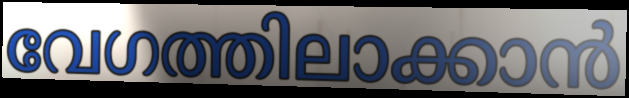
വേഗത്തിലാക്കാൻ